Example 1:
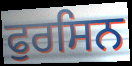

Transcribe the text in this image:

ਫੁਰਸਿਨ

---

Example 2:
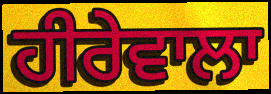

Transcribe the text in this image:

ਹੀਰੇਵਾਲਾ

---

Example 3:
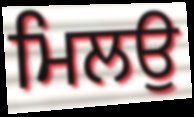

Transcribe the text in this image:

ਮਿਲਉ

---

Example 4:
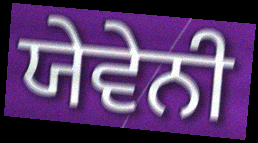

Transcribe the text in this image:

ਯੇਵੇਨੀ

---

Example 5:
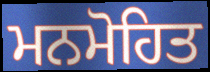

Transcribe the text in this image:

ਮਨਮੋਹਿਤ